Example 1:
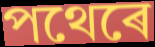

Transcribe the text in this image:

পথেৰে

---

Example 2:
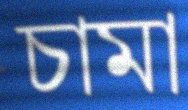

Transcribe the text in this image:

চামা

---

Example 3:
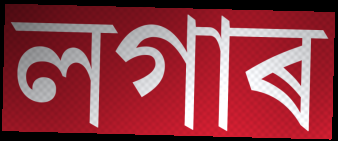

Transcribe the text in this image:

লগাৰ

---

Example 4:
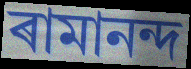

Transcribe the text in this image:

ৰামানন্দ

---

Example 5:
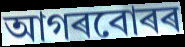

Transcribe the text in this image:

আগৰবোৰৰ